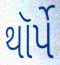
થૉર્પે